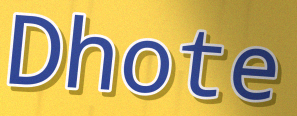
Dhote